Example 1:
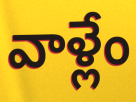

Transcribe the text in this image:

వాళ్లేం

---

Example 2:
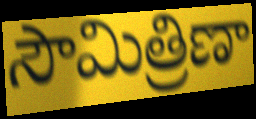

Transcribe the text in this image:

సౌమిత్రిణా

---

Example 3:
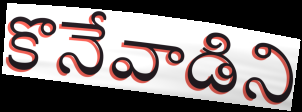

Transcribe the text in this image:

కొనేవాడిని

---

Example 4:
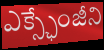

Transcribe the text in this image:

ఎక్స్ఛేంజీని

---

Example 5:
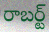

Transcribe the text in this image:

రాబర్ట్